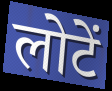
लोटें